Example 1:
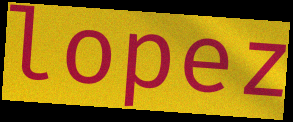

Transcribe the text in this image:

lopez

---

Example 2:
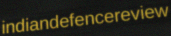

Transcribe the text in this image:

indiandefencereview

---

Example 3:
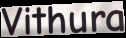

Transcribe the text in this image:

Vithura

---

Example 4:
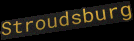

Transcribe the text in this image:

Stroudsburg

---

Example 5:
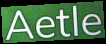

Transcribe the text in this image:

Aetle